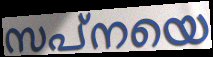
സപ്‌നയെ